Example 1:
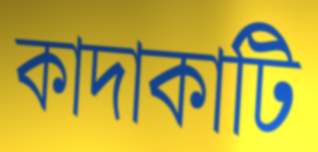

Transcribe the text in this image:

কাদাকাটি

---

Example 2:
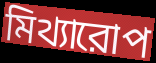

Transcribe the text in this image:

মিথ্যারোপ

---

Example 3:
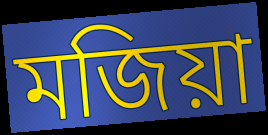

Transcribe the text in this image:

মজিয়া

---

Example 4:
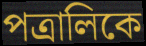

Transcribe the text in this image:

পত্রালিকে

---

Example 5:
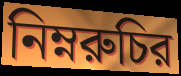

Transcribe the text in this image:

নিম্নরুচির